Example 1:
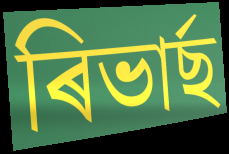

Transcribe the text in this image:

ৰিভাৰ্ছ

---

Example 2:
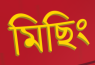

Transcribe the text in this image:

মিছিং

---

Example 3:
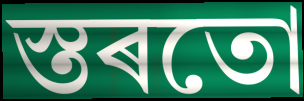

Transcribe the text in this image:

স্তৰতো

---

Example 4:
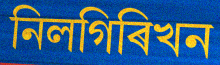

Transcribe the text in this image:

নিলগিৰিখন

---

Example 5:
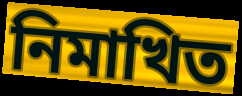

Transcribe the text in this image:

নিমাখিত